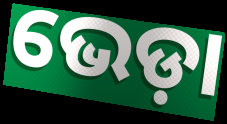
ଭେଡ଼ା